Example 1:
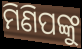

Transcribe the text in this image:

ମିଣିପଙ୍କୁ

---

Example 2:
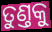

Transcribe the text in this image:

ତୁଣ୍ତକୁ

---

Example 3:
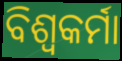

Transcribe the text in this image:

ବିଶ୍ବକର୍ମା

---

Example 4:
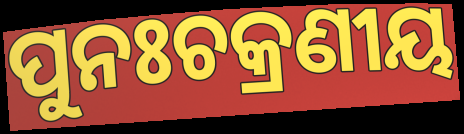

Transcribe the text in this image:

ପୁନଃଚକ୍ରଣୀୟ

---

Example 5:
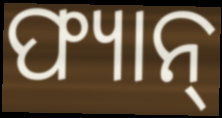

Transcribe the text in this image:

ଫ୍ୟାନ୍